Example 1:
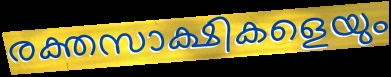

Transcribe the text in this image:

രക്തസാക്ഷികളെയും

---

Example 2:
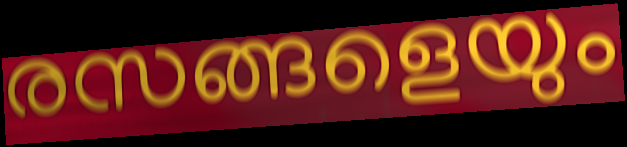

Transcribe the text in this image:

രസങ്ങളെയും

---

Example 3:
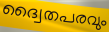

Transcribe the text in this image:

ദ്വൈതപരവും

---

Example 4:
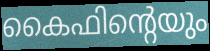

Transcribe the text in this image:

കൈഫിന്റെയും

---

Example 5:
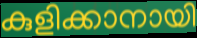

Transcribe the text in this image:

കുളിക്കാനായി